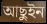
আছুইন